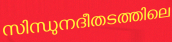
സിന്ധുനദീതടത്തിലെ